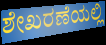
ಶೇಖರಣೆಯಲ್ಲಿ